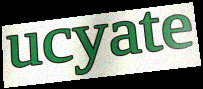
ucyate